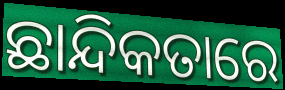
ଛାନ୍ଦିକତାରେ